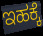
ಇಹಕ್ಕೆ